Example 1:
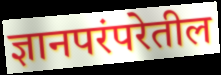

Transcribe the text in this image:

ज्ञानपरंपरेतील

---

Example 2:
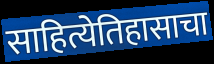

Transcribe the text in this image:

साहित्येतिहासाचा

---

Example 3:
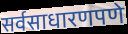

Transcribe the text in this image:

सर्वसाधारणपणे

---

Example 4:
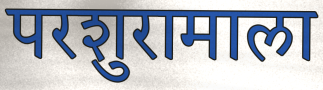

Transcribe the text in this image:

परशुरामाला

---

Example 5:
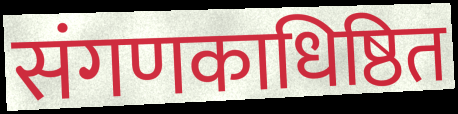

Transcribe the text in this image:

संगणकाधिष्ठित